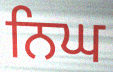
ਨਿਘ